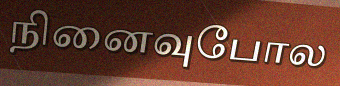
நினைவுபோல